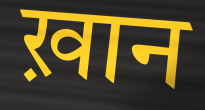
ख़ान